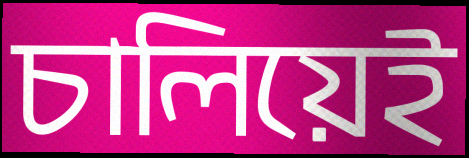
চালিয়েই